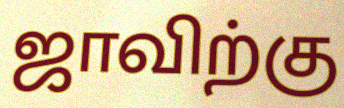
ஜாவிற்கு